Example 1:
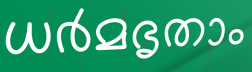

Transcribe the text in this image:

ധർമഭൃതാം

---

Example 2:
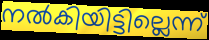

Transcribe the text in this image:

നൽകിയിട്ടില്ലെന്ന്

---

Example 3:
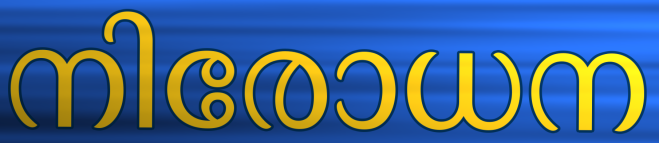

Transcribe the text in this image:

നിരോധന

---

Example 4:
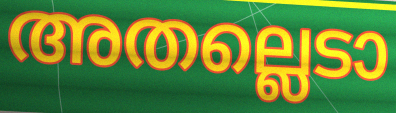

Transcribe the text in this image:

അതല്ലെടാ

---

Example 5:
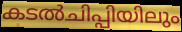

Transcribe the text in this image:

കടൽചിപ്പിയിലും